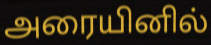
அரையினில்